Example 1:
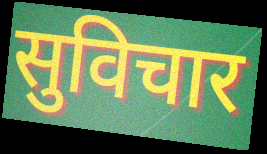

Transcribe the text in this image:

सुविचार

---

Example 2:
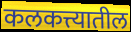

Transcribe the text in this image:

कलकत्त्यातील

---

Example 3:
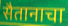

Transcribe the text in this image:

सैतानाचा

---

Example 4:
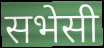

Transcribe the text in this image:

सभेसी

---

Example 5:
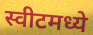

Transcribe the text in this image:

स्वीटमध्ये